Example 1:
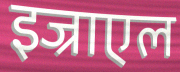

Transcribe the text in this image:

इज्राएल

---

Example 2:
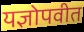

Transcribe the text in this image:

यज्ञोपवीत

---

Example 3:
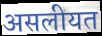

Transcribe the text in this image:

असलीयत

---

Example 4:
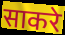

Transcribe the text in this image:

साकरे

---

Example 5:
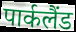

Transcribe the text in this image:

पार्कलैंड